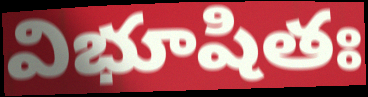
విభూషితః